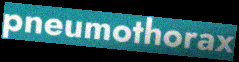
pneumothorax